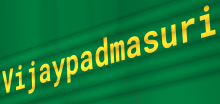
Vijaypadmasuri